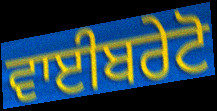
ਵਾਈਬਰੇਟੋ